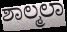
ಶಾಲ್ಮಲಾ